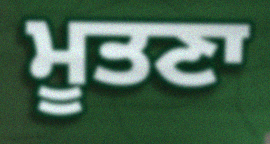
ਮੂਤਣਾ